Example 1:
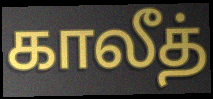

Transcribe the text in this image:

காலீத்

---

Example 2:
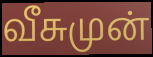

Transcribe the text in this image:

வீசுமுன்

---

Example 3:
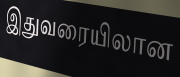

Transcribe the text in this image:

இதுவரையிலான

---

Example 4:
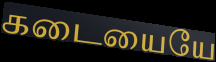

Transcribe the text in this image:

கடையையே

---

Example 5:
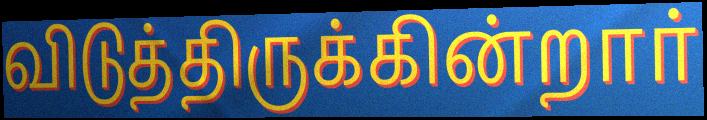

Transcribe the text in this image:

விடுத்திருக்கின்றார்